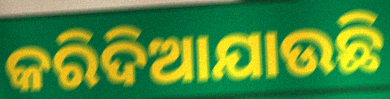
କରିଦିଆଯାଉଛି